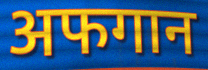
अफगान